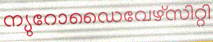
ന്യുറോഡൈവേഴ്സിറ്റി